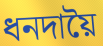
ধনদায়ৈ